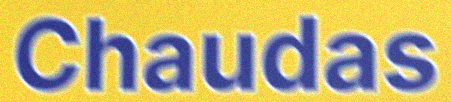
Chaudas